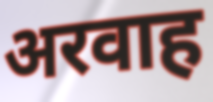
अरवाह